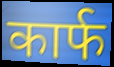
कार्फ